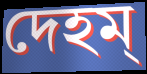
দেহম্